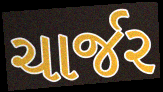
ચાર્જર